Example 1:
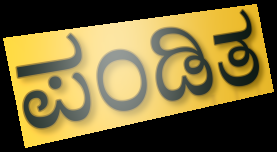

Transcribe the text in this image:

ಪಂಡಿತ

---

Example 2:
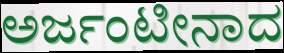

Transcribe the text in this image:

ಅರ್ಜಂಟೀನಾದ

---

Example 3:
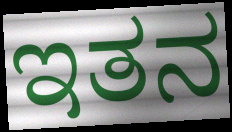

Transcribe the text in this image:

ಇತನ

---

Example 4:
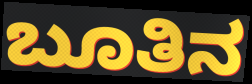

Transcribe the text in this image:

ಬೂತಿನ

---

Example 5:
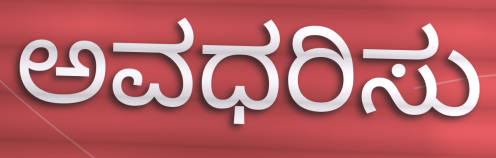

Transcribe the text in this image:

ಅವಧರಿಸು